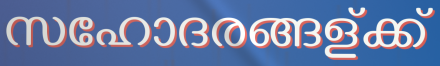
സഹോദരങ്ങള്ക്ക്